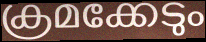
ക്രമക്കേടും